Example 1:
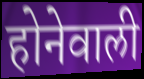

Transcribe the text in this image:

होनेवाली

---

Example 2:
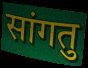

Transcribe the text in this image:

सांगतु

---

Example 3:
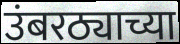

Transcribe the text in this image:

उंबरठ्याच्या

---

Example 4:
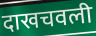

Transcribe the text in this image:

दाखचवली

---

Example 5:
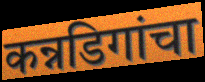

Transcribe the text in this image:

कन्नडिगांचा